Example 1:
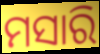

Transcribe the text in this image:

ମସାରି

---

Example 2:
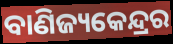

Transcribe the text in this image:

ବାଣିଜ୍ୟକେନ୍ଦ୍ରର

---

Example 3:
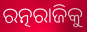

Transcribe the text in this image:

ରତ୍ନରାଜିକୁ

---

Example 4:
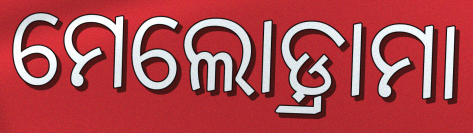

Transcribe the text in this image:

ମେଲୋଡ଼୍ରାମା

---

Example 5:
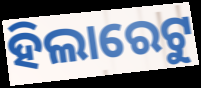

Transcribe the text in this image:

ହିଲାରେଟୁ